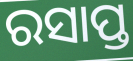
ରସାପ୍ତ